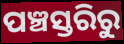
ପଞ୍ଚସ୍ତରିରୁ